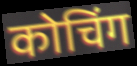
कोचिंग